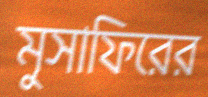
মুসাফিরের